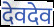
देवदेव